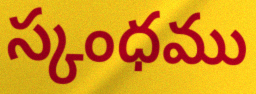
స్కంధము